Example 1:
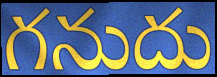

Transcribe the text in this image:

గనుదు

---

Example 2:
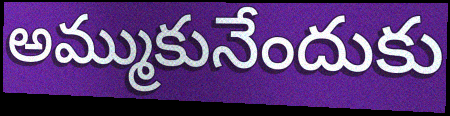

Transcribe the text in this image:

అమ్ముకునేందుకు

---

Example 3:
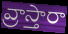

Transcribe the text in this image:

వ్రాస్తారా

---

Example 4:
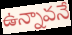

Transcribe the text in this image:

ఉన్నావనే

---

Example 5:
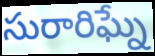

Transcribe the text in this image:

సురారిఘ్నే